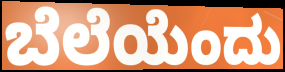
ಬೆಲೆಯೆಂದು